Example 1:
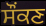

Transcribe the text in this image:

ਸੌਂਕਣ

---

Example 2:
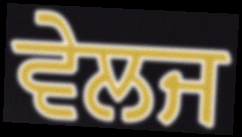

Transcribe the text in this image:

ਵੇਲਜ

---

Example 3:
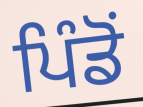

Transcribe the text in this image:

ਪਿੰਡੋਂ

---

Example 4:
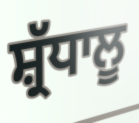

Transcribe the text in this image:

ਸ਼੍ਰੱਧਾਲੂ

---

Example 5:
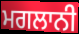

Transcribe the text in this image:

ਮਗਲਾਨੀ